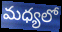
మధ్యలో